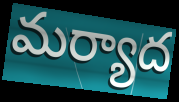
మర్యాద